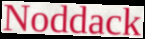
Noddack